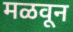
मळवून